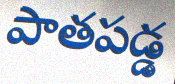
పాతపడ్డ